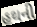
હથની